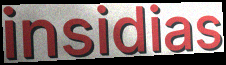
insidias